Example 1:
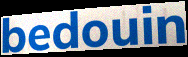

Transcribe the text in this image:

bedouin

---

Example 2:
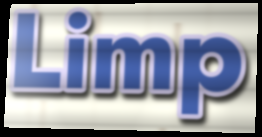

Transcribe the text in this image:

Limp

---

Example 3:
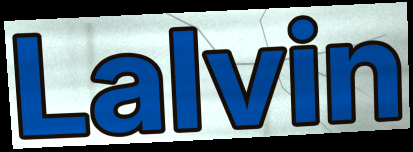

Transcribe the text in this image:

Lalvin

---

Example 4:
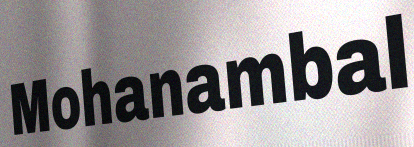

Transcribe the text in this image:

Mohanambal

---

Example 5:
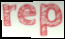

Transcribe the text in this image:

rep